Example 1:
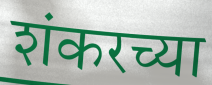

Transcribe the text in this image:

शंकरच्या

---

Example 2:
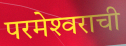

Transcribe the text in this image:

परमेश्‍वराची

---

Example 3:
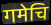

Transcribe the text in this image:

गमेचि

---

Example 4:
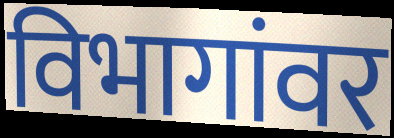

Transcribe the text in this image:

विभागांवर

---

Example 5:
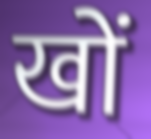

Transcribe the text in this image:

खों